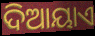
ଦିଆୟାଏ